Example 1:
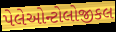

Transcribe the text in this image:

પેલેઓન્ટોલોજીકલ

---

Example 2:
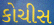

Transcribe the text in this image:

કોચીસ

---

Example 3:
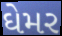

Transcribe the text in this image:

ઘેમર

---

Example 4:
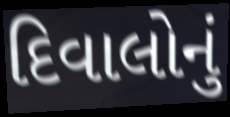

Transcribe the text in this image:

દિવાલોનું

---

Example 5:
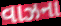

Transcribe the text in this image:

વાઝના